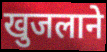
खुजलाने